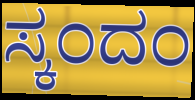
ಸ್ಕಂದಂ